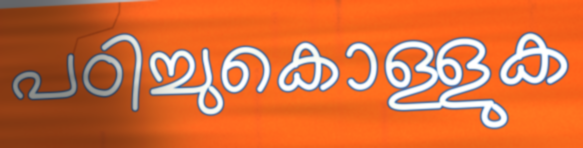
പഠിച്ചുകൊള്ളുക